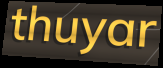
thuyar